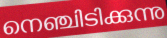
നെഞ്ചിടിക്കുന്നു